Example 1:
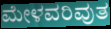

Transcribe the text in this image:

ಮೇಳವರಿವುತ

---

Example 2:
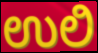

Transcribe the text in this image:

ಉಲಿ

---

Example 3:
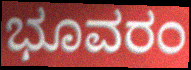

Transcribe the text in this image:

ಭೂವರಂ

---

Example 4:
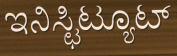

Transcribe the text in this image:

ಇನಿಸ್ಟಿಟ್ಯೂಟ್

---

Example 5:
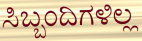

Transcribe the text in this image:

ಸಿಬ್ಬಂದಿಗಳಿಲ್ಲ